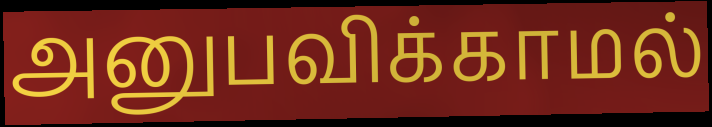
அனுபவிக்காமல்